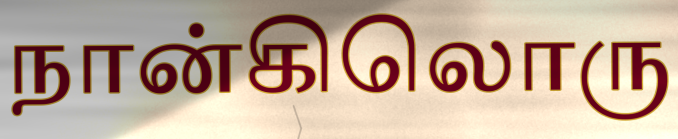
நான்கிலொரு